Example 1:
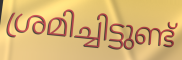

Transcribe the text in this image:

ശ്രമിച്ചിട്ടുണ്ട്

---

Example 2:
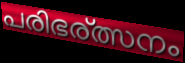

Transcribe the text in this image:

പരിഭര്ത്സനം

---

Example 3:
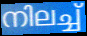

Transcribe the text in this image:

നിലച്ച്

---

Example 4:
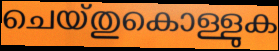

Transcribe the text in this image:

ചെയ്തുകൊള്ളുക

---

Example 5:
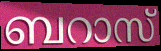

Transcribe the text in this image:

ബറാസ്